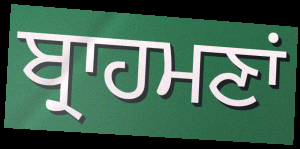
ਬ੍ਰਾਹਮਣਾਂ